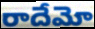
రాదేమో